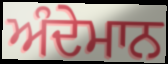
ਅੰਦੇਮਾਨ